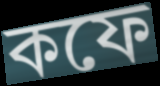
কফে